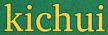
kichui